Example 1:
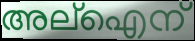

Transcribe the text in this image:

അല്ഐന്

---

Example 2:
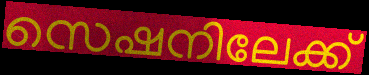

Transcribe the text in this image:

സെഷനിലേക്ക്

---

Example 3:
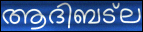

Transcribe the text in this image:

ആദിബട്ല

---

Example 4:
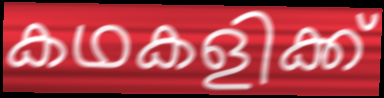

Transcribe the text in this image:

കഥകളിക്ക്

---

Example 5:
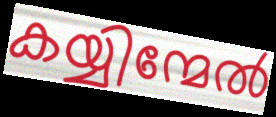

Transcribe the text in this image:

കയ്യിന്മേൽ